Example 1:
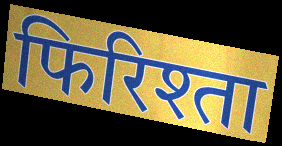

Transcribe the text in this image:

फिरिश्ता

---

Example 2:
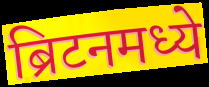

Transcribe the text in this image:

ब्रिटनमध्ये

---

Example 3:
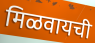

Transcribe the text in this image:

मिळवायची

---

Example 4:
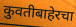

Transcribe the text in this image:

कुवतीबाहेरचा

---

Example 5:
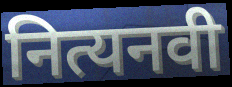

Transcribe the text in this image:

नित्यनवी